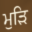
ਮੁੜਿ